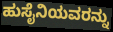
ಹುಸೈನಿಯವರನ್ನು